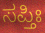
ಸಪ್ತಿಃ